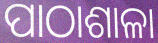
ପାଠାଶାଳା